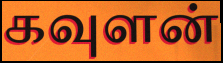
கவுளன்